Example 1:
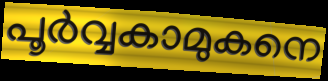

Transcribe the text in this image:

പൂർവ്വകാമുകനെ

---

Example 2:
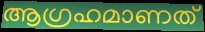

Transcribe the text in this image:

ആഗ്രഹമാണത്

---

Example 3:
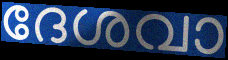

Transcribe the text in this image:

ദേശവാ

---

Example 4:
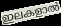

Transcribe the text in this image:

ഇലകളാൽ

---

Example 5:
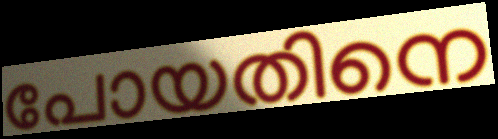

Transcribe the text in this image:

പോയതിനെ